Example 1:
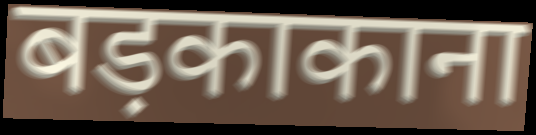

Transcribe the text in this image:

बड़काकाना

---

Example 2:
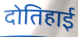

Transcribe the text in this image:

दोतिहाई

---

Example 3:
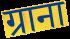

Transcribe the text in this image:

ग्राना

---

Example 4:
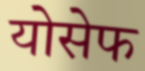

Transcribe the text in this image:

योसेफ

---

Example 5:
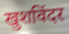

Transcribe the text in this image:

खुशविंदर